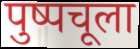
पुष्पचूला